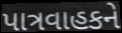
પાત્રવાહકને